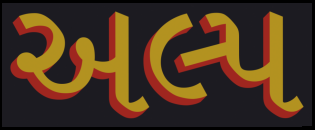
અલ્પ